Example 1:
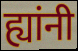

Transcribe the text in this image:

ह्यांनी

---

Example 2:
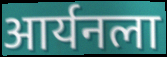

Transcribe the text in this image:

आर्यनला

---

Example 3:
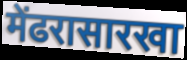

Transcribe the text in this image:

मेंढरासारखा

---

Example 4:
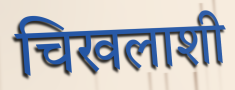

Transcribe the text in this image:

चिखलाशी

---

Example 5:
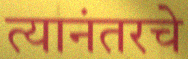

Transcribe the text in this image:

त्यानंतरचे